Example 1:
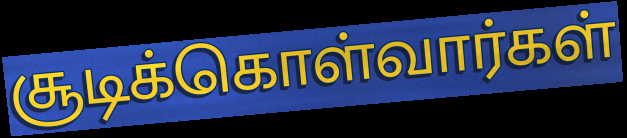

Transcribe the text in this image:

சூடிக்கொள்வார்கள்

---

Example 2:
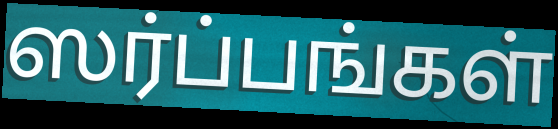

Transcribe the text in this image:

ஸர்ப்பங்கள்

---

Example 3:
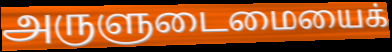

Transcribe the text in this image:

அருளுடைமையைக்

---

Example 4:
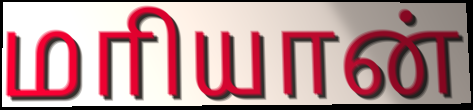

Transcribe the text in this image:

மரியான்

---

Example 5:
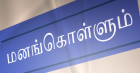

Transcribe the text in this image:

மனங்கொள்ளும்